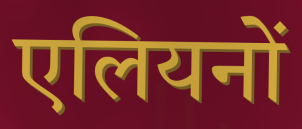
एलियनों